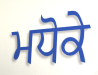
ਮਧੋਕੇ